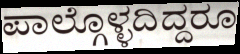
ಪಾಲ್ಗೊಳ್ಳದಿದ್ದರೂ